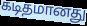
கடிதமானது